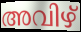
അവിഴ്